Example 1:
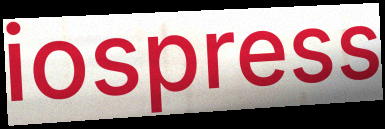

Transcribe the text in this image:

iospress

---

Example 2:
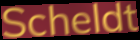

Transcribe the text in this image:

Scheldt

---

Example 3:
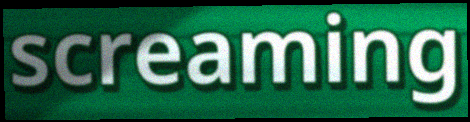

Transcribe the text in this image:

screaming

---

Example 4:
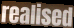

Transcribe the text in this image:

realised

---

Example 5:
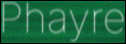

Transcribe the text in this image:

Phayre